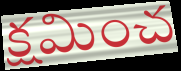
క్షమించ